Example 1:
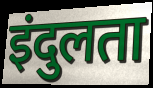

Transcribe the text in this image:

इंदुलता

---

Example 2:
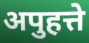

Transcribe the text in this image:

अपुहत्ते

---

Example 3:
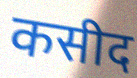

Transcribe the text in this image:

कसीद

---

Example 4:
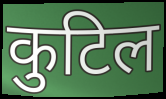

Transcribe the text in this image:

कुटिल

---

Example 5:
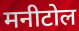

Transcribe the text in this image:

मनीटोल